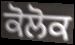
ਕੋਲੋਕ